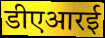
डीएआरई